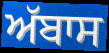
ਅੱਬਾਸ